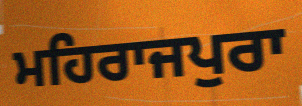
ਮਹਿਰਾਜਪੁਰਾ